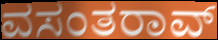
ವಸಂತರಾವ್